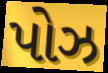
પોઝ